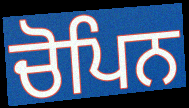
ਚੋਪਿਨ